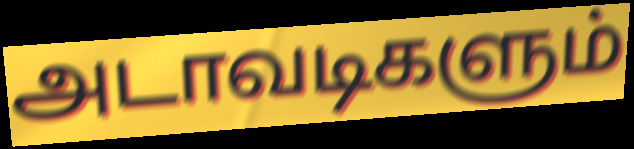
அடாவடிகளும்